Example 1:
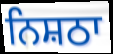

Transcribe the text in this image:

ਨਿਸ਼ਠਾ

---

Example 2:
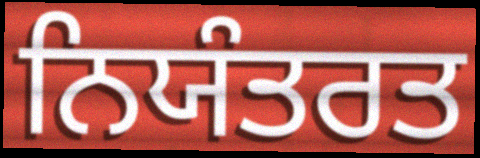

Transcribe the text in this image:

ਨਿਯੰਤਰਤ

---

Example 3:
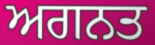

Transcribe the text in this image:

ਅਗਨਤ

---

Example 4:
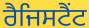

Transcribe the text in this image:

ਰੈਜਿਸਟੈਂਟ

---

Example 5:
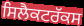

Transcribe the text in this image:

ਸਿਲੈਕਟਰੱਕਸ